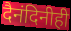
दैनंदिनीही